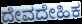
ದೇವದೇಹಿಕ